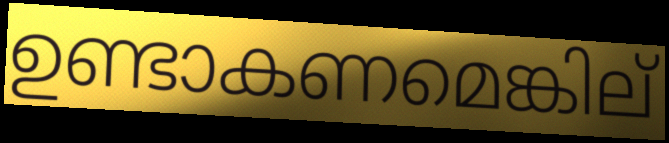
ഉണ്ടാകണമെങ്കില്